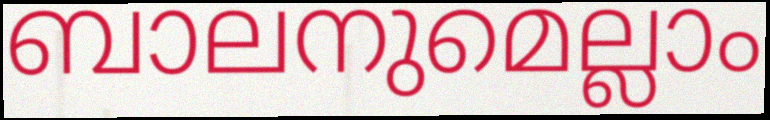
ബാലനുമെല്ലാം